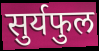
सुर्यफुल